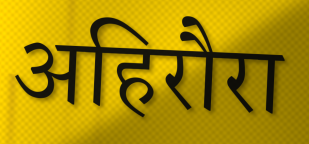
अहिरौरा